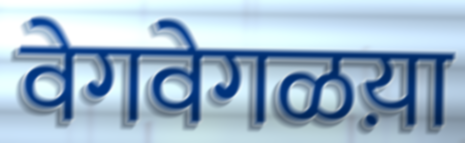
वेगवेगळय़ा